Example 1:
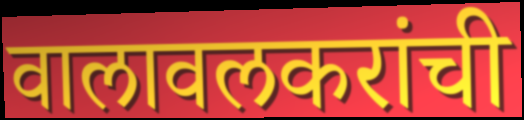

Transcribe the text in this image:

वालावलकरांची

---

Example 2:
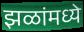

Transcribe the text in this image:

झळांमध्ये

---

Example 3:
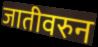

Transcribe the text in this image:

जातीवरुन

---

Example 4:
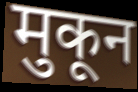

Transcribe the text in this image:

मुकून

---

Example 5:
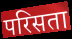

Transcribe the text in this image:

परिसता